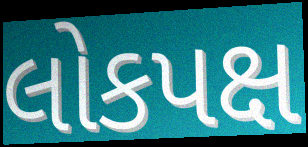
લોકપક્ષ